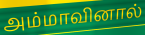
அம்மாவினால்